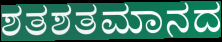
ಶತಶತಮಾನದ